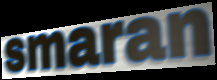
smaran